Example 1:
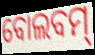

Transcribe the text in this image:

ବୋଲବମ୍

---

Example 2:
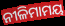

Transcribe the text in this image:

ନୀଳିମାମୟ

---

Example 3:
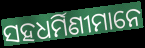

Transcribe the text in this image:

ସହଧର୍ମିଣୀମାନେ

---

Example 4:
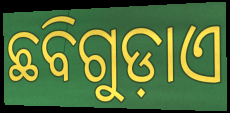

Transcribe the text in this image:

ଛବିଗୁଡ଼ାଏ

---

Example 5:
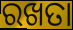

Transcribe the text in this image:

ରଖତା